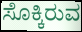
ಸೊಕ್ಕಿರುವ